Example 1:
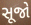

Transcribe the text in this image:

સૂજો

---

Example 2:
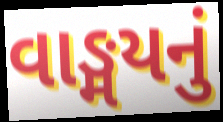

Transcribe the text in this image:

વાઙ્મયનું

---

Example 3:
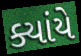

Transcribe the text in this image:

ક્યાંયે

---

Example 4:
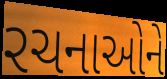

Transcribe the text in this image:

રચનાઓને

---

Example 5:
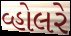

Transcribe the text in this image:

વ્હોલરે